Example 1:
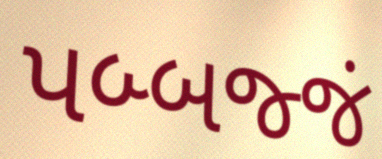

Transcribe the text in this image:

પબ્બજ્જં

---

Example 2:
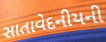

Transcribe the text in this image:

સાતાવેદનીયની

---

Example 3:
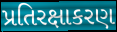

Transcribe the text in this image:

પ્રતિરક્ષાકરણ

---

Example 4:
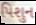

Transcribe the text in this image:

પિશુન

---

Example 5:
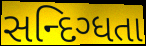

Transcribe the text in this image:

સન્દિગ્ધતા